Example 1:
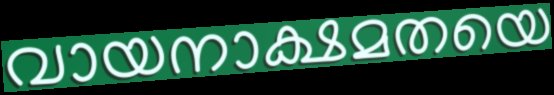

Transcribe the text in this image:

വായനാക്ഷമതയെ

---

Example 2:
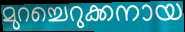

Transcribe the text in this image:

മുറച്ചെറുക്കനായ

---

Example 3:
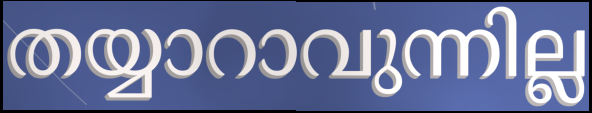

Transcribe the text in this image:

തയ്യാറാവുന്നില്ല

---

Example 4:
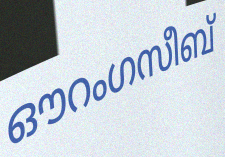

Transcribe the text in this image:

ഔറംഗസീബ്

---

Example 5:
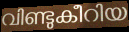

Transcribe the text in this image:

വിണ്ടുകീറിയ